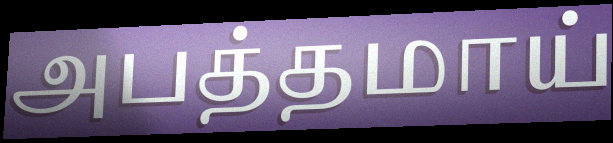
அபத்தமாய்